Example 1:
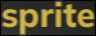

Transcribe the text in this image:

sprite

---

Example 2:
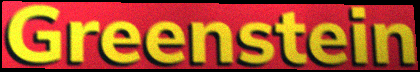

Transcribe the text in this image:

Greenstein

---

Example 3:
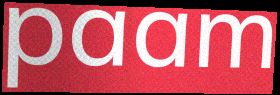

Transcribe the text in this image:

paam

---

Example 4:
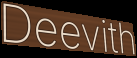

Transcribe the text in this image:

Deevith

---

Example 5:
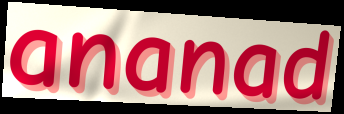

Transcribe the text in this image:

ananad